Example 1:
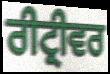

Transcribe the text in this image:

ਰੀਟ੍ਰੀਵਰ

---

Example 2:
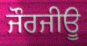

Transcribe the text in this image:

ਜੌਰਜੀਊ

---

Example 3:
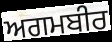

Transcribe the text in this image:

ਅਗਮਬੀਰ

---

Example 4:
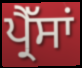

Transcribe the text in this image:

ਪ੍ਰੈੱਸਾਂ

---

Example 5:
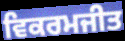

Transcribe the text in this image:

ਵਿਕਰਮਜੀਤ